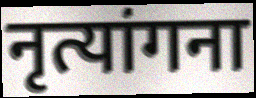
नृत्यांगना